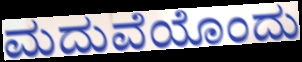
ಮದುವೆಯೊಂದು